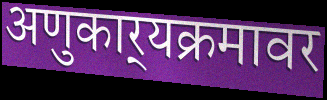
अणुकार्यक्रमावर